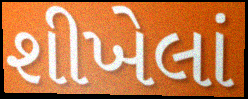
શીખેલાં